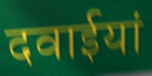
दवाईयां